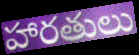
హారతులు